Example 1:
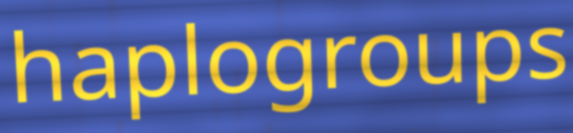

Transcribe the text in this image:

haplogroups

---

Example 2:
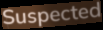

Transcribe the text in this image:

Suspected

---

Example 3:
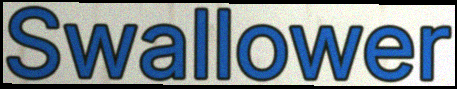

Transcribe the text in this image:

Swallower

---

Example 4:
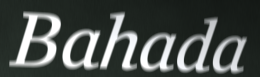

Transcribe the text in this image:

Bahada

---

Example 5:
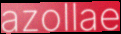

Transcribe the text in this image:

azollae